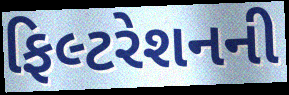
ફિલ્ટરેશનની